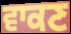
ਵਾਕਣ